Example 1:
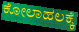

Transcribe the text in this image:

ಕೋಲಾಹಲಕ್ಕೆ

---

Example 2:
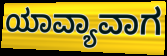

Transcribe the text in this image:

ಯಾವ್ಯಾವಾಗ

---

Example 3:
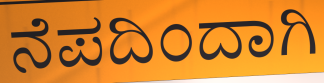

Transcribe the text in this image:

ನೆಪದಿಂದಾಗಿ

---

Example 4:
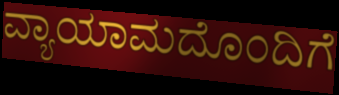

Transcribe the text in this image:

ವ್ಯಾಯಾಮದೊಂದಿಗೆ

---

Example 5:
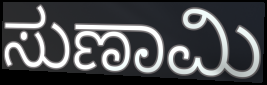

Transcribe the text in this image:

ಸುಣಾಮಿ